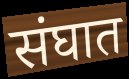
संघात